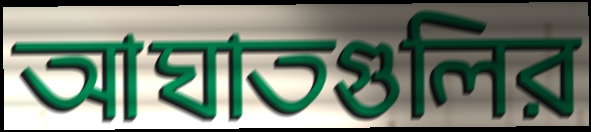
আঘাতগুলির